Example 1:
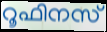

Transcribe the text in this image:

റൂഫിനസ്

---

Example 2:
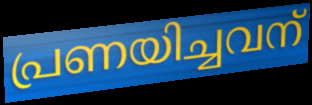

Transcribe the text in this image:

പ്രണയിച്ചവന്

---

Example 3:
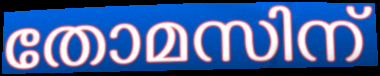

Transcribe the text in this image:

തോമസിന്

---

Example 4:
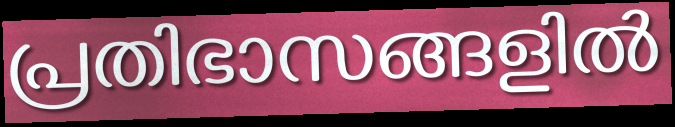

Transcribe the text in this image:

പ്രതിഭാസങ്ങളിൽ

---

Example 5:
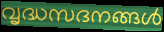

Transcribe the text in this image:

വൃദ്ധസദനങ്ങൾ